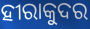
ହୀରାକୁଦର